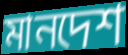
মানদেশ